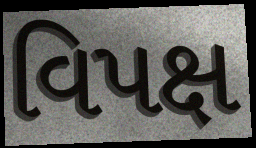
વિપક્ષ